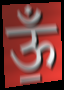
ऊँ॒